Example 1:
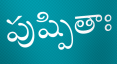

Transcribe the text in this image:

పుష్పితాః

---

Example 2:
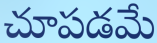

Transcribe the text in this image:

చూపడమే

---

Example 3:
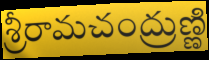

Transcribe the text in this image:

శ్రీరామచంద్రుణ్ణి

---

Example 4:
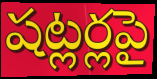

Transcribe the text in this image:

షట్లర్లపై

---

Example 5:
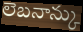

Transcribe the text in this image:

లెబనాన్కు